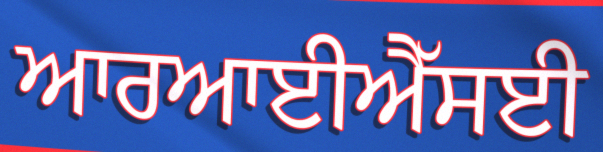
ਆਰਆਈਐੱਸਈ